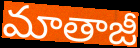
మాతాజీ